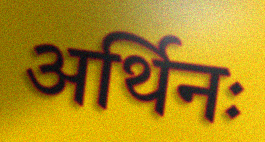
अर्थिनः